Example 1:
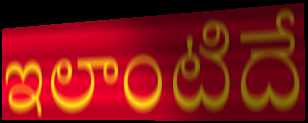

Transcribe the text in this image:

ఇలాంటిదే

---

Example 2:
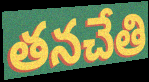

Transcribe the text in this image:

తనచేతి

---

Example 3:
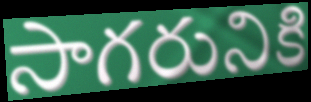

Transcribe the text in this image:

సాగరునికి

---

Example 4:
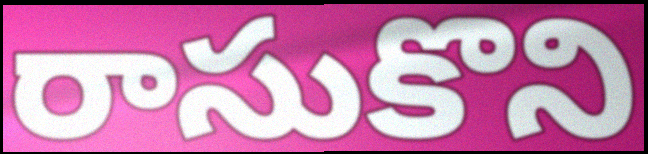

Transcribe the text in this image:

రాసుకొని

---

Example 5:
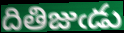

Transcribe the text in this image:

దితిజుఁడు